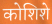
कोशिशे